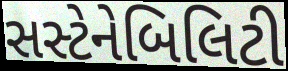
સસ્ટેનેબિલિટી